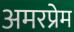
अमरप्रेम